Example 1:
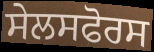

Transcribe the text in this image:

ਸੇਲਸਫੋਰਸ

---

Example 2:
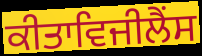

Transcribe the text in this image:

ਕੀਤਾਵਿਜੀਲੈਂਸ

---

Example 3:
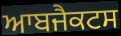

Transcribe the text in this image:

ਆਬਜੈਕਟਸ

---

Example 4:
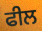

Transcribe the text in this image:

ਫੀਲ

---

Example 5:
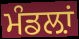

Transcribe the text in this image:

ਮੰਡਲ਼ਾਂ